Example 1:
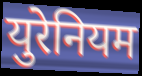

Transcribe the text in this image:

युरेनियम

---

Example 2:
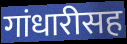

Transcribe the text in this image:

गांधारीसह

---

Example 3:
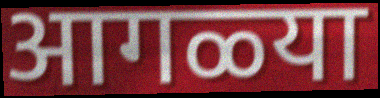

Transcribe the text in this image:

आगळ्या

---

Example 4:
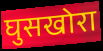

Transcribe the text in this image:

घुसखोरा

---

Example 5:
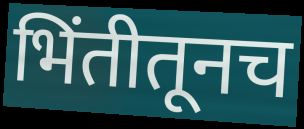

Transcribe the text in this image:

भिंतीतूनच